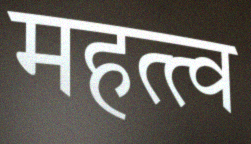
महत्‍त्‍व